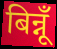
बिन्नूँ